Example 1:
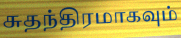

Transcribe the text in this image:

சுதந்திரமாகவும்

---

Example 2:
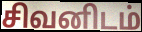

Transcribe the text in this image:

சிவனிடம்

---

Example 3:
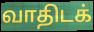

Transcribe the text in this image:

வாதிடக்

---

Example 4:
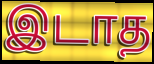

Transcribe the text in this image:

இடாத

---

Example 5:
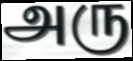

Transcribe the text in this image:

அரு